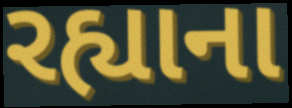
રહ્યાના